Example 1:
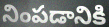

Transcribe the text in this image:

నింపడానికి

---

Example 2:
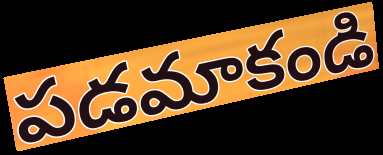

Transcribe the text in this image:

పడమాకండి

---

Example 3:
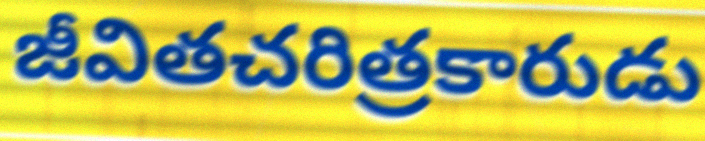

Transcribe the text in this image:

జీవితచరిత్రకారుడు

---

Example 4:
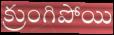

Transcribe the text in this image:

క్రుంగిపోయి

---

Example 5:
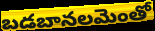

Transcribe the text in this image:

బడబానలమెంతో